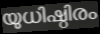
യുധിഷ്ഠിരം